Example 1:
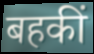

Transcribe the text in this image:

बहकीं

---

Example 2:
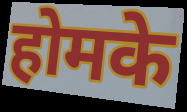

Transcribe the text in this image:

होमके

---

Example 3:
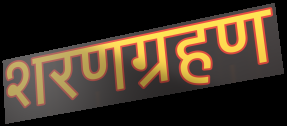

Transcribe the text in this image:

शरणग्रहण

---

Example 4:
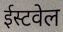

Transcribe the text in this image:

ईस्टवेल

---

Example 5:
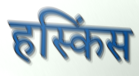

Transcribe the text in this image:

हस्किंस